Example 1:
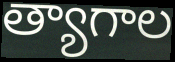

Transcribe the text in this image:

త్యాగాల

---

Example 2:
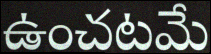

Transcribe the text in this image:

ఉంచటమే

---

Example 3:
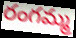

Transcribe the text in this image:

రంగమ్మ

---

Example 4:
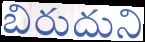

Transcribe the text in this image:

బిరుదుని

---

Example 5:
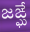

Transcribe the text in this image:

జఙ్ఘే